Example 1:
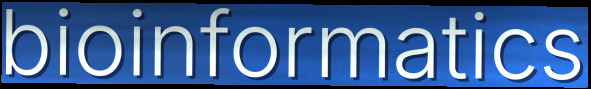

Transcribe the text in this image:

bioinformatics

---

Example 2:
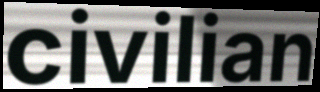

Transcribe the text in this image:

civilian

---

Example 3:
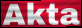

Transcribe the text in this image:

Akta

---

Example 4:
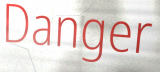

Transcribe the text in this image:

Danger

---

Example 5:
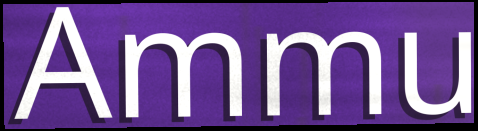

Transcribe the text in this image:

Ammu